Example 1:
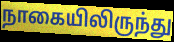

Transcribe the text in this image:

நாகையிலிருந்து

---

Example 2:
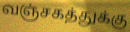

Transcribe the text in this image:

வஞ்சகத்துக்கு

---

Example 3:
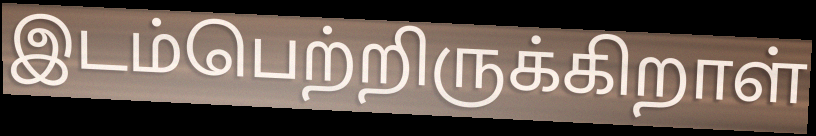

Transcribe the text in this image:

இடம்பெற்றிருக்கிறாள்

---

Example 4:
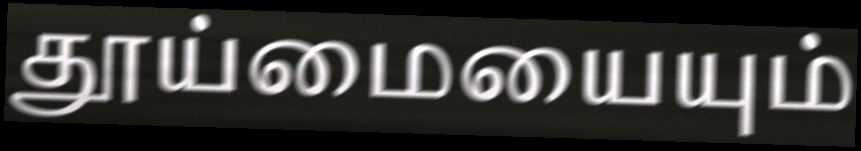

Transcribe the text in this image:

தூய்மையையும்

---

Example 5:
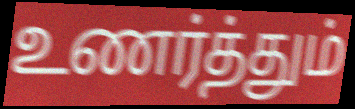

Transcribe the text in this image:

உணர்த்தும்